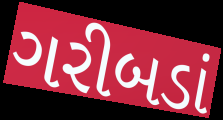
ગરીબડાં